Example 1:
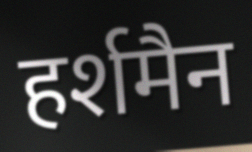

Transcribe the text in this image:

हर्शमैन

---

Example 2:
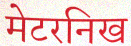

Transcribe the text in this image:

मेटरनिख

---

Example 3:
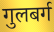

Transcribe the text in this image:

गुलबर्ग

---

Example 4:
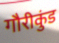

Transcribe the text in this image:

गौरीकुंड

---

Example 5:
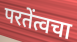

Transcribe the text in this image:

परतेंत्वचा